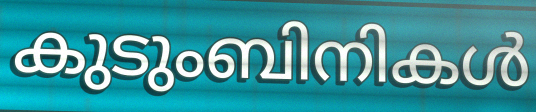
കുടുംബിനികൾ